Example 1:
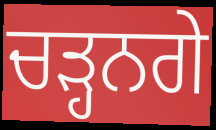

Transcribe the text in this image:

ਚੜ੍ਹਨਗੇ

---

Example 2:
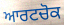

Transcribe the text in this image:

ਆਰਟਚੋਕ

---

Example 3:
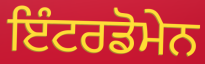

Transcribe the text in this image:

ਇੰਟਰਡੋਮੇਨ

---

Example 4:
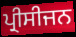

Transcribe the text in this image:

ਪ੍ਰੀਸੀਜਨ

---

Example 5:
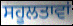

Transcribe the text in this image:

ਸਹੂਲਤਾਵਾਂ